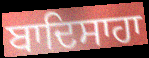
ਬਾਦਿਸਾਹਾ